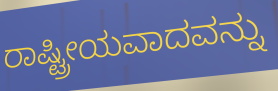
ರಾಷ್ಟ್ರೀಯವಾದವನ್ನು